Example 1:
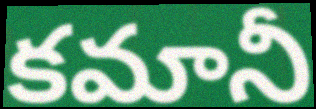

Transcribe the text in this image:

కమానీ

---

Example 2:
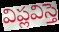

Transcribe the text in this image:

విప్లవిస్తె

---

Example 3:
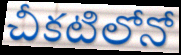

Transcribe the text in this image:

చీకటిలోనో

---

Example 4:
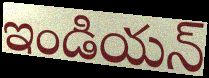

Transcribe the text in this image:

ఇండియన్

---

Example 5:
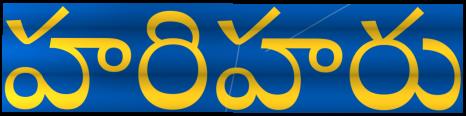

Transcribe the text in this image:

హరిహరు